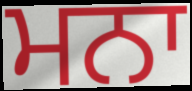
ਮਨਾ